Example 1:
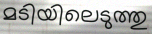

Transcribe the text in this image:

മടിയിലെടുത്തു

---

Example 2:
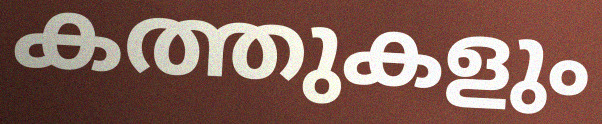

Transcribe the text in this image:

കത്തുകളും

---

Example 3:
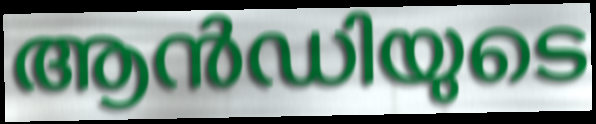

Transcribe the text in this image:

ആൻഡിയുടെ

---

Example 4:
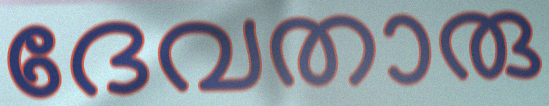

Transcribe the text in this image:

ദേവതാരു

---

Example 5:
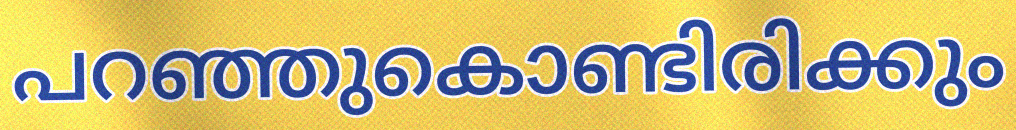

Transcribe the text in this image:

പറഞ്ഞുകൊണ്ടിരിക്കും